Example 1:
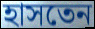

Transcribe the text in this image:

হাসতেন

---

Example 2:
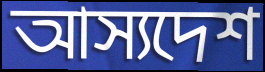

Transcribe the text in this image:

আস্যদেশ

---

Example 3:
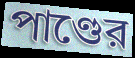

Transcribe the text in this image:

পাণ্ডের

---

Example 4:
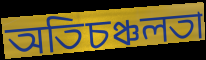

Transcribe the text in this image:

অতিচঞ্চলতা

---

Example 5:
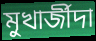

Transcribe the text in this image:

মুখার্জীদা